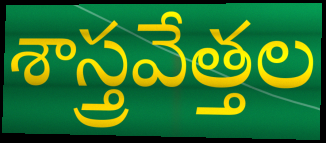
శాస్త్రవేత్తల